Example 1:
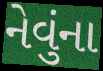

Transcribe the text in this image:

નેવુંના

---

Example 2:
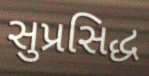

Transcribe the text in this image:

સુપ્રસિદ્ધ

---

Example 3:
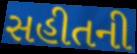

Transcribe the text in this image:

સહીતની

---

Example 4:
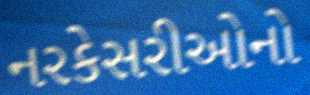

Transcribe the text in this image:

નરકેસરીઓનો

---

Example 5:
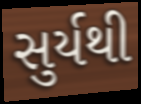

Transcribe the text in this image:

સુર્યથી